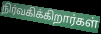
நிர்வகிக்கிறார்கள்